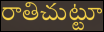
రాతిచుట్టూ